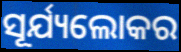
ସୂର୍ଯ୍ୟଲୋକର